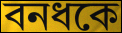
বনধকে